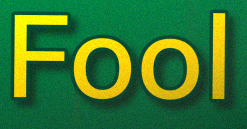
Fool